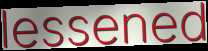
lessened